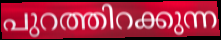
പുറത്തിറക്കുന്ന